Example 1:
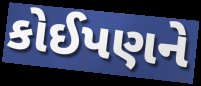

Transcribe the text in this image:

કોઈપણને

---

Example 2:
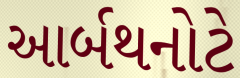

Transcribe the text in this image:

આર્બથનોટે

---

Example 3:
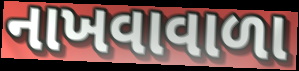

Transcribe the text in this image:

નાખવાવાળા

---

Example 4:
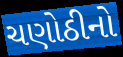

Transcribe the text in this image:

ચણોઠીનો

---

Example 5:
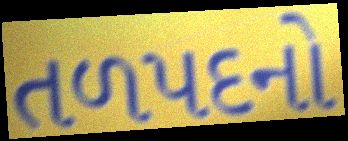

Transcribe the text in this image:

તળપદનો